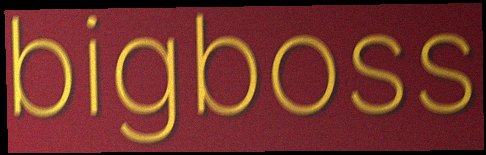
bigboss